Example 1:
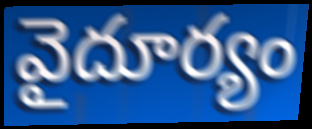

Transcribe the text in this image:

వైదూర్యం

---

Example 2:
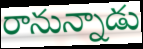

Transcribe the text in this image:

రానున్నాడు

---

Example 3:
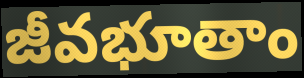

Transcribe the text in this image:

జీవభూతాం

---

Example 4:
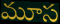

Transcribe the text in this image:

మూస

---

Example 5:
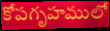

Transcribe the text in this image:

కోపగృహములో